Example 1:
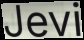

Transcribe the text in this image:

Jevi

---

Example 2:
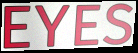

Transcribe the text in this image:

EYES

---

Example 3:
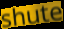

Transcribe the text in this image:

shute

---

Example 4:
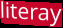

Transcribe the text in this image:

literay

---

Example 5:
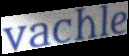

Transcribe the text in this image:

vachle